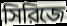
সিরিজে